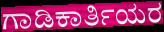
ಗಾಡಿಕಾರ್ತಿಯರ